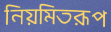
নিয়মিতরূপ